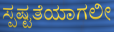
ಸ್ಪಷ್ಟತೆಯಾಗಲೀ